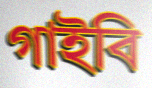
গাইবি